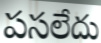
పసలేదు